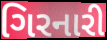
ગિરનારી